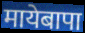
मायेबापा